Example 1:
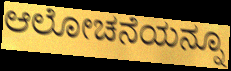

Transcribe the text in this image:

ಆಲೋಚನೆಯನ್ನೂ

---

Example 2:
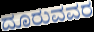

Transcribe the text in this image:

ದೂರುವವರ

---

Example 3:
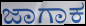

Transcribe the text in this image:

ಜಾಗಾಕ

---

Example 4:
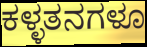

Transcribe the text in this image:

ಕಳ್ಳತನಗಳೂ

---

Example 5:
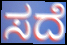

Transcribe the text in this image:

ಸದೆ